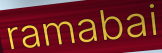
ramabai